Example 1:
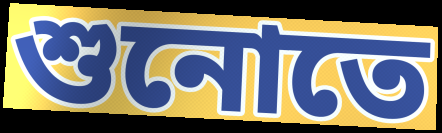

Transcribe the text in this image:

শুনোতে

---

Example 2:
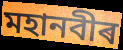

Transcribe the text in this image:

মহানবীৰ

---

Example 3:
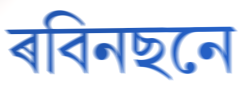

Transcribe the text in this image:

ৰবিনছনে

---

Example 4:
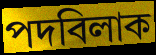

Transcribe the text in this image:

পদবিলাক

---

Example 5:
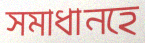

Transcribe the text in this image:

সমাধানহে